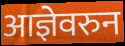
आज्ञेवरुन